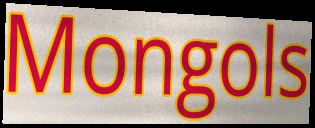
Mongols